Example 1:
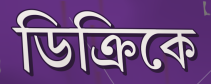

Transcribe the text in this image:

ডিক্রিকে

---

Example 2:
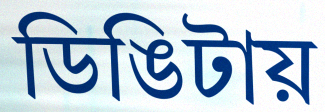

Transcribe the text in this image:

ডিঙিটায়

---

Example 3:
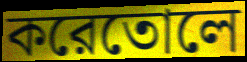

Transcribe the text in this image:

করেতোলে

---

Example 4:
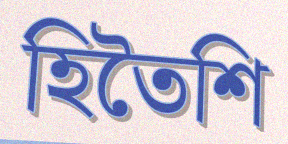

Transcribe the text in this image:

হিতৈশি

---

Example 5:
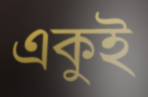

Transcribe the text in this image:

একুই